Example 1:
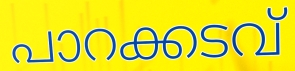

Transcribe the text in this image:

പാറക്കടവ്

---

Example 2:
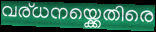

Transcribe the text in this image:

വര്ധനയ്ക്കെതിരെ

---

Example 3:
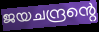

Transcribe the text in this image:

ജയചന്ദ്രന്റെ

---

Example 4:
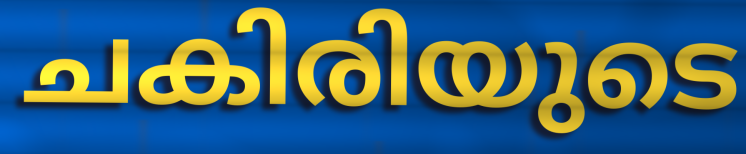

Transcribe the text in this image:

ചകിരിയുടെ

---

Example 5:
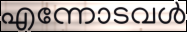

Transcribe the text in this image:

എന്നോടവൾ